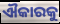
ଐକାରକୁ